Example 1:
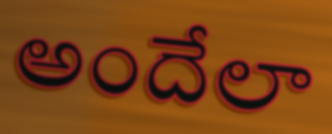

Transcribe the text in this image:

అందేలా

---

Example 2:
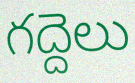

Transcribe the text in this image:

గద్దెలు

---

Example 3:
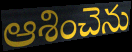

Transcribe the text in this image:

ఆశించెను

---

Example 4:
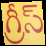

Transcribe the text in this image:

గ్రీస్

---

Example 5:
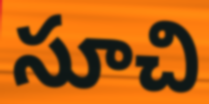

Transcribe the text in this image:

సూచి